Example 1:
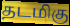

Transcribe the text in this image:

தடமிகு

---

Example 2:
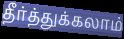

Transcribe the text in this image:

தீர்த்துக்கலாம்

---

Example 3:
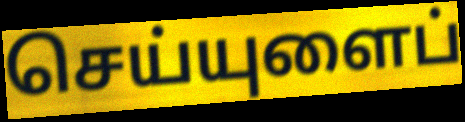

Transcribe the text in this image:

செய்யுளைப்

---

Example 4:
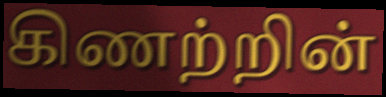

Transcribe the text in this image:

கிணற்றின்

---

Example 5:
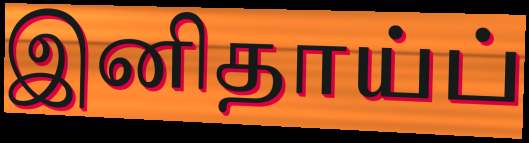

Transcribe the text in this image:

இனிதாய்ப்